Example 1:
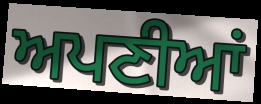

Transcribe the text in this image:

ਅਪਣੀਆਂ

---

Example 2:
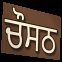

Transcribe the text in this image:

ਚੌਸਠ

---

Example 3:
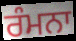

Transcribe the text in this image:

ਰੰਮਨਾ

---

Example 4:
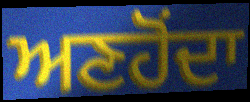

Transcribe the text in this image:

ਅਣਹੋਂਦਾ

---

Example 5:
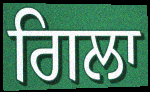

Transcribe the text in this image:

ਗਿਲਾ